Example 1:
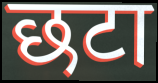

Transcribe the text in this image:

छटा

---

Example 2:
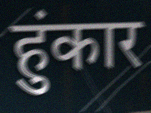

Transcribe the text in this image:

हुंकार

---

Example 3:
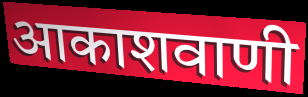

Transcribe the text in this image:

आकाशवाणी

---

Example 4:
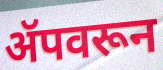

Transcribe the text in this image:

ॲपवरून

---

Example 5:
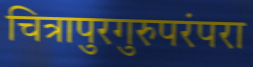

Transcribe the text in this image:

चित्रापुरगुरुपरंपरा